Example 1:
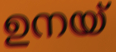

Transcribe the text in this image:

ഉനയ്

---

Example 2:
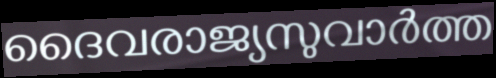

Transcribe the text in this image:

ദൈവരാജ്യസുവാർത്ത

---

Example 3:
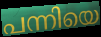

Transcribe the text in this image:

പന്നിയെ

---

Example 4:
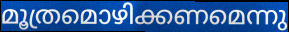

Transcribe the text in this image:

മൂത്രമൊഴിക്കണമെന്നു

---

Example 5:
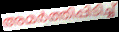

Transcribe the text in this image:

അമർത്തിപ്പിടിച്ച്